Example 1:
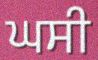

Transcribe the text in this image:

ਘਸੀ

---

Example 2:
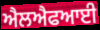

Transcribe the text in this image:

ਐਲਐਫਆਈ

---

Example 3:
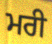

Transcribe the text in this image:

ਮਰੀ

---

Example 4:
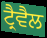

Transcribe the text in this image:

ਟ੍ਰੈਵੈਲ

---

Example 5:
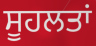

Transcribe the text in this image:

ਸੂਹਲਤਾਂ